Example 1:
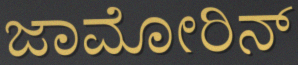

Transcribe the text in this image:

ಜಾಮೋರಿನ್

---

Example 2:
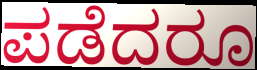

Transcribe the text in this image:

ಪಡೆದರೂ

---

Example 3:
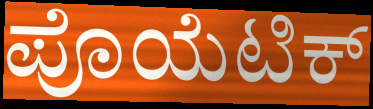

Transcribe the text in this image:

ಪೊಯೆಟಿಕ್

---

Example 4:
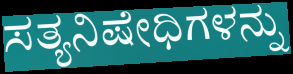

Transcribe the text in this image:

ಸತ್ಯನಿಷೇಧಿಗಳನ್ನು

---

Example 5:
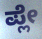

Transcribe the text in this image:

ಪ್ಲೇ